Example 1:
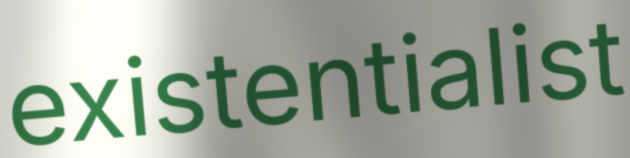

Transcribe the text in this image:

existentialist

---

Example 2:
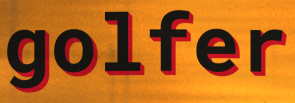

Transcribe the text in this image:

golfer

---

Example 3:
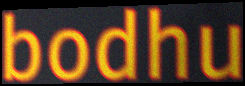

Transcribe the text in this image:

bodhu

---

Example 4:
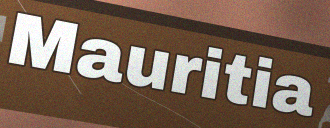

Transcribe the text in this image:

Mauritia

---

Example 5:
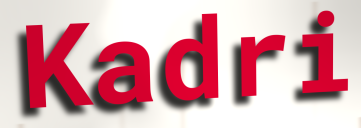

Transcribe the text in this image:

Kadri